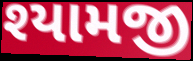
શ્યામજી